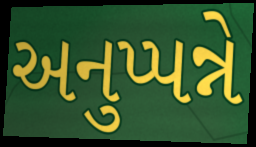
અનુપ્પન્ને